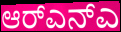
ಆರ್‌ಎನ್ಎ